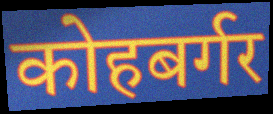
कोहबर्गर